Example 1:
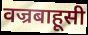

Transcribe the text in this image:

वज्रबाहूसी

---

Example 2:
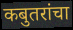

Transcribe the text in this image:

कबुतरांचा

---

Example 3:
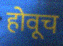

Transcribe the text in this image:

होवूच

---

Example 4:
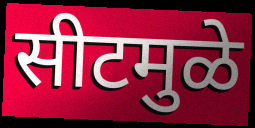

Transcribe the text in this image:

सीटमुळे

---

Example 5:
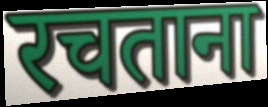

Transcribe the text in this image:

रचताना